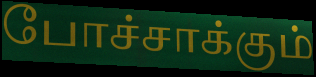
போச்சாக்கும்